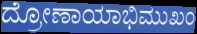
ದ್ರೋಣಾಯಾಭಿಮುಖಂ